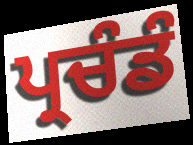
ਪ੍ਰਚੰਡੰ